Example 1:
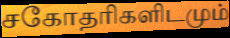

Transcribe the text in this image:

சகோதரிகளிடமும்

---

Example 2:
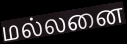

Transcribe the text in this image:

மல்லனை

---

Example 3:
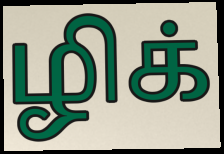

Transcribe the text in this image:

ழிக்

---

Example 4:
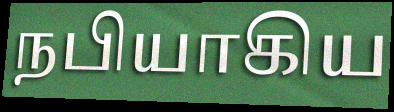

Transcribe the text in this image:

நபியாகிய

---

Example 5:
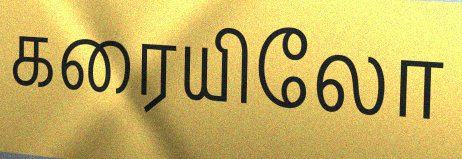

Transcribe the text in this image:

கரையிலோ